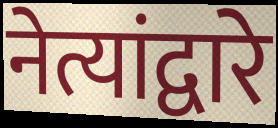
नेत्यांद्वारे